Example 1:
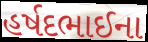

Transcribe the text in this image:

હર્ષદભાઈના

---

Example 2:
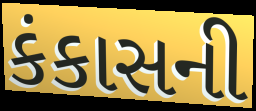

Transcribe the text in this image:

કંકાસની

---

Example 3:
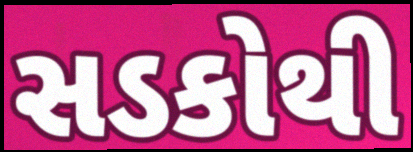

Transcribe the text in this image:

સડકોથી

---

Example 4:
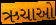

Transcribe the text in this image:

ઋચાઓ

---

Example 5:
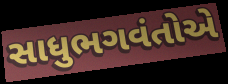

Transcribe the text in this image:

સાધુભગવંતોએ